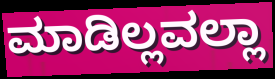
ಮಾಡಿಲ್ಲವಲ್ಲಾ